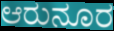
ಆರುನೂರ